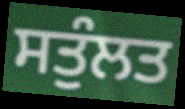
ਸਤੁੰਲਤ